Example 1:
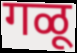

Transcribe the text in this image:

गळू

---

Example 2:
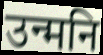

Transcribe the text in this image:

उन्मनि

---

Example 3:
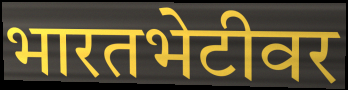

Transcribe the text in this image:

भारतभेटीवर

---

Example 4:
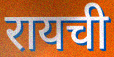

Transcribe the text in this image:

रायची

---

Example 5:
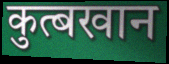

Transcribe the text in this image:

कुत्बखान